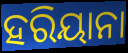
ହରିୟାନା